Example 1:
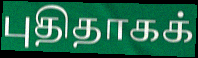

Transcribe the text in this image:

புதிதாகக்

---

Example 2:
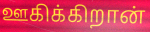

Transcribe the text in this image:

ஊகிக்கிறான்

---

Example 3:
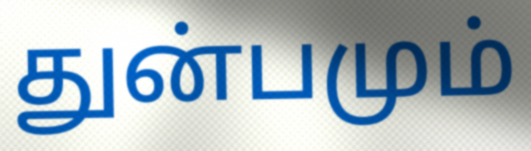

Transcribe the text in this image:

துன்பமும்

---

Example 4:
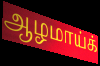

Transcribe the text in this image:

ஆழமாய்க்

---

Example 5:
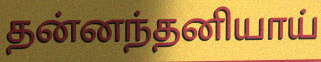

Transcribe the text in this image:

தன்னந்தனியாய்